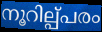
നൂറില്പ്പരം